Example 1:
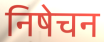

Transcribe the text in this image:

निषेचन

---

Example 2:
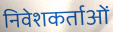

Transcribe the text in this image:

निवेशकर्ताओं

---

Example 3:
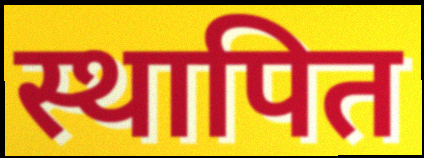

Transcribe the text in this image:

स्थापित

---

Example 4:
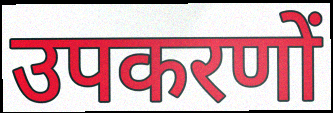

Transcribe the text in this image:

उपकरणों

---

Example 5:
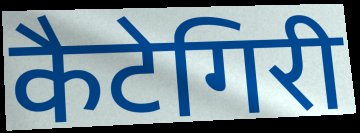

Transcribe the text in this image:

कैटेगिरी